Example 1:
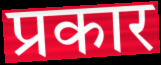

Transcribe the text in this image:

प्रकार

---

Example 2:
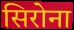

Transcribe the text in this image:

सिरोना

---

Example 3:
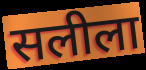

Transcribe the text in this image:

सलीला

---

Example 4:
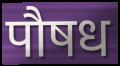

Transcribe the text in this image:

पौषध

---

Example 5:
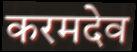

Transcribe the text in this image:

करमदेव